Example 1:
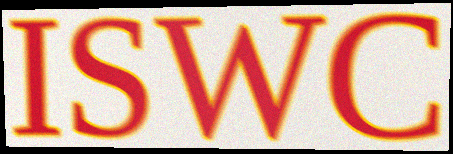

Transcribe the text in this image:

ISWC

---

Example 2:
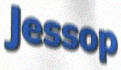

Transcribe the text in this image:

Jessop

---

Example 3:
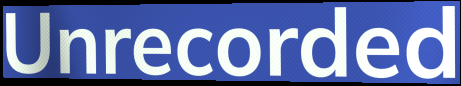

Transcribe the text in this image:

Unrecorded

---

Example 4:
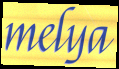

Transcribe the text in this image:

melya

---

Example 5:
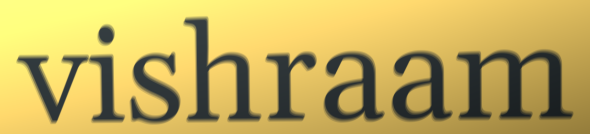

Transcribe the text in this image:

vishraam